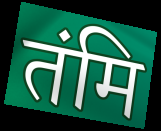
तंमि